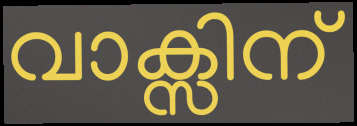
വാക്സിന്